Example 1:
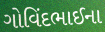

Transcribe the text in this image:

ગોવિંદભાઈના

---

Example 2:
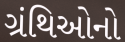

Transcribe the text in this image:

ગ્રંથિઓનો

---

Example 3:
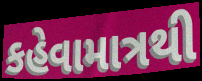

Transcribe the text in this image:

કહેવામાત્રથી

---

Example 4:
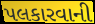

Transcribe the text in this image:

પલકારવાની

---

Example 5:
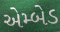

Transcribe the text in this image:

એમ્બેડ